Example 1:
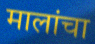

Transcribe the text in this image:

मालांचा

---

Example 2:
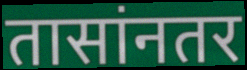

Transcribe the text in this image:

तासांनतर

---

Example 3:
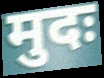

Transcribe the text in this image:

मुदः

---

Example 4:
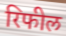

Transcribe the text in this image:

रिफील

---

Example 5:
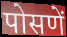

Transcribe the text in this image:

पोसणें